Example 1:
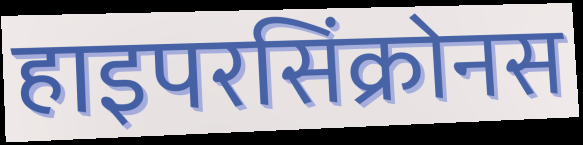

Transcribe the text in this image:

हाइपरसिंक्रोनस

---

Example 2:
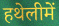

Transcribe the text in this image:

हथेलीमें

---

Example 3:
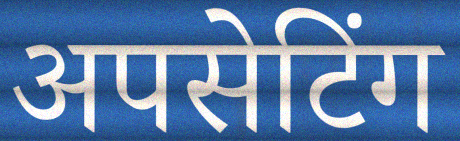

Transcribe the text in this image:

अपसेटिंग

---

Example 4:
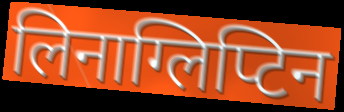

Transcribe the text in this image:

लिनाग्लिप्टिन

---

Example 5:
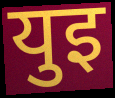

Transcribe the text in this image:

युइ